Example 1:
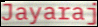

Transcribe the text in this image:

Jayaraj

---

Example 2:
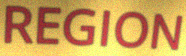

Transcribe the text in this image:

REGION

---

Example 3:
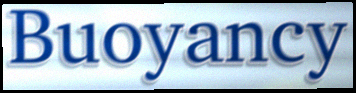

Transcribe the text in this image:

Buoyancy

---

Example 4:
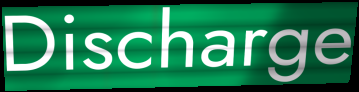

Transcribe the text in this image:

Discharge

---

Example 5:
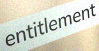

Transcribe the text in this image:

entitlement